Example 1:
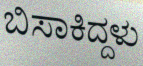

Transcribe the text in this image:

ಬಿಸಾಕಿದ್ದಳು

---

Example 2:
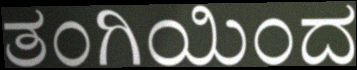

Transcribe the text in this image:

ತಂಗಿಯಿಂದ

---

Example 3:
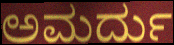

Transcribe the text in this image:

ಅಮರ್ದು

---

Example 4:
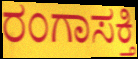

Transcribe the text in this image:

ರಂಗಾಸಕ್ತಿ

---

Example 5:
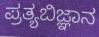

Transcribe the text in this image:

ಪ್ರತ್ಯಬಿಜ್ಞಾನ